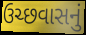
ઉચ્છવાસનું